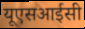
यूएसआईसी